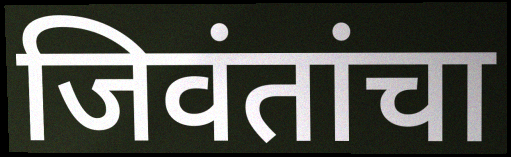
जिवंतांचा